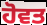
ਹੋਵਤ